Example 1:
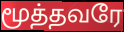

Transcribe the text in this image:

மூத்தவரே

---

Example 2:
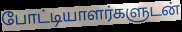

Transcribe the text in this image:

போட்டியாளர்களுடன்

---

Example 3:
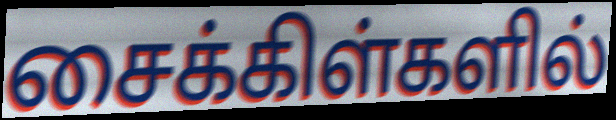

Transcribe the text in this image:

சைக்கிள்களில்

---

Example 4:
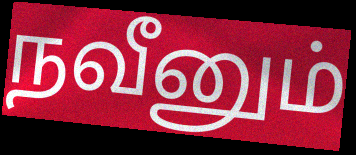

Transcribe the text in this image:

நவீனும்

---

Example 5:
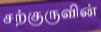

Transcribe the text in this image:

சற்குருவின்